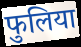
फुलिया